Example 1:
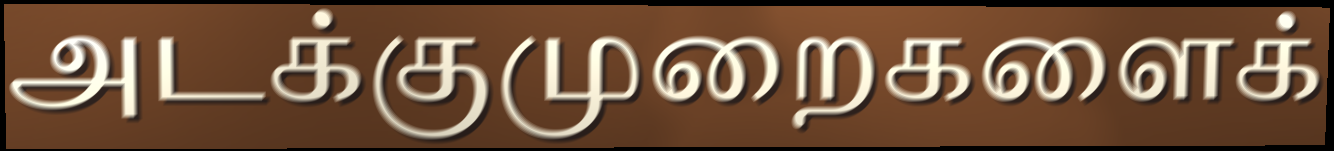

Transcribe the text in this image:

அடக்குமுறைகளைக்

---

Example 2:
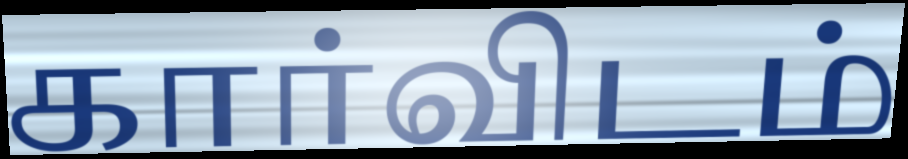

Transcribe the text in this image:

கார்விடம்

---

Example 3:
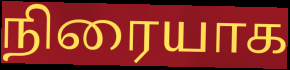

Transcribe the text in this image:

நிரையாக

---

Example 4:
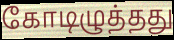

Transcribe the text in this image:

கோடிழுத்தது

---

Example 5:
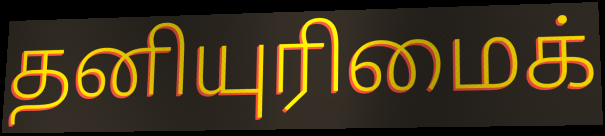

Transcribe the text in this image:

தனியுரிமைக்